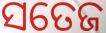
ସତେଜ